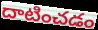
దాటించడం